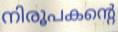
നിരൂപകന്റെ